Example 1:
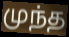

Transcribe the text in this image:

முந்த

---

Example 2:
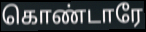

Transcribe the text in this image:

கொண்டாரே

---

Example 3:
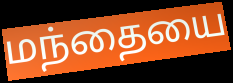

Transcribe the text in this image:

மந்தையை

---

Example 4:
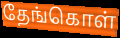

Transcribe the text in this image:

தேங்கொள்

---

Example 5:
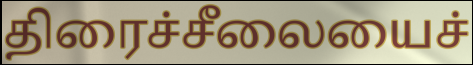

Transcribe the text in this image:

திரைச்சீலையைச்